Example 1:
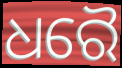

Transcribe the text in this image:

ଧରୈ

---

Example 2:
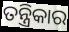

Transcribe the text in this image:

ତନ୍ତ୍ରିକାର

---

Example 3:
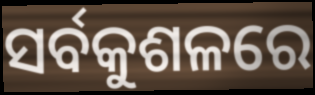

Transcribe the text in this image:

ସର୍ବକୁଶଳରେ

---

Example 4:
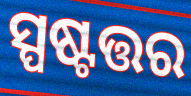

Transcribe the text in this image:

ସ୍ପଷ୍ଟତ୍ତର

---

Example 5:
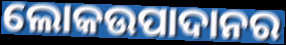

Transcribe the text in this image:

ଲୋକଉପାଦାନର